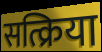
सत्क्रिया